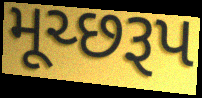
મૂચ્છરૂપ